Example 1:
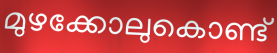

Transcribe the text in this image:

മുഴക്കോലുകൊണ്ട്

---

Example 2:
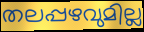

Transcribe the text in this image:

തലപ്പഴവുമില്ല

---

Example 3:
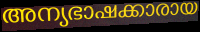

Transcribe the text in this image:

അന്യഭാഷക്കാരായ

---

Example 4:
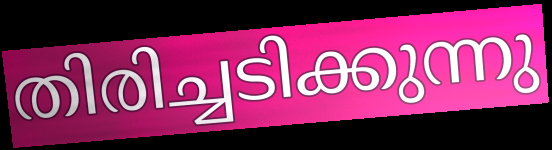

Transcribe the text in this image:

തിരിച്ചടിക്കുന്നു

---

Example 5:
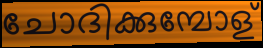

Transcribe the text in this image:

ചോദിക്കുമ്പോള്